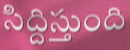
సిద్దిస్తుంది